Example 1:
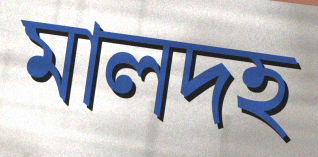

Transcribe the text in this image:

মালদহ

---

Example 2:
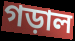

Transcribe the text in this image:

গড়াল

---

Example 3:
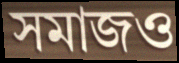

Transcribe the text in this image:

সমাজও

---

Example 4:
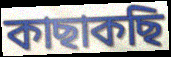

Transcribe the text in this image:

কাছাকছি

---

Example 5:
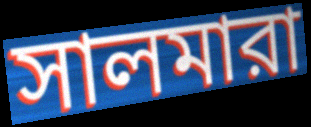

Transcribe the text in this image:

সালমারা